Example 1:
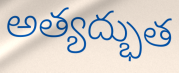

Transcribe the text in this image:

అత్యద్భుత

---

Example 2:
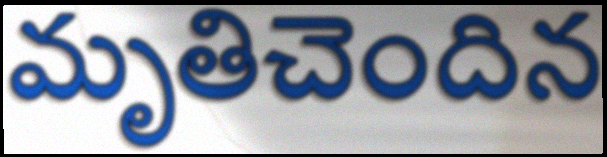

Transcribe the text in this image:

మృతిచెందిన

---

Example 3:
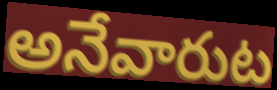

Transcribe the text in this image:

అనేవారుట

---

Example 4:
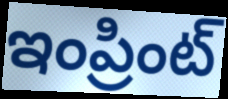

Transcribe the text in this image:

ఇంప్రింట్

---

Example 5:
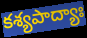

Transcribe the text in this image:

కశ్యపాద్యాః